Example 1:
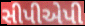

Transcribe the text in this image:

સીપીએપી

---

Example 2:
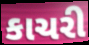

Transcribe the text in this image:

કાચરી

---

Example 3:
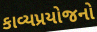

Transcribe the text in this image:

કાવ્યપ્રયોજનો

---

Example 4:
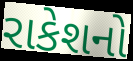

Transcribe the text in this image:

રાકેશનો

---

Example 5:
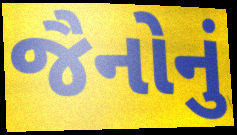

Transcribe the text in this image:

જૈનોનું